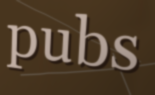
pubs